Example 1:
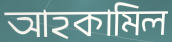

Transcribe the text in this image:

আহকামিল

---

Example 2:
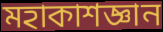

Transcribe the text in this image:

মহাকাশজ্ঞান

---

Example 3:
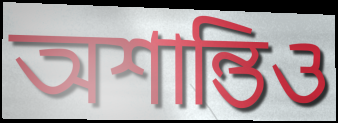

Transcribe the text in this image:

অশান্তিও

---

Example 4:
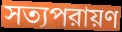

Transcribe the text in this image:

সত্যপরায়ণ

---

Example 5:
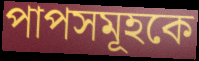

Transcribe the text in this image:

পাপসমূহকে